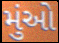
મુંઓ